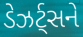
ડેઝર્ટ્સને